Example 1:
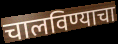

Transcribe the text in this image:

चालविण्याचा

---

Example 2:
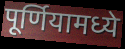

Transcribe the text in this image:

पूर्णियामध्ये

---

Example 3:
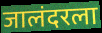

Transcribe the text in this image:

जालंदरला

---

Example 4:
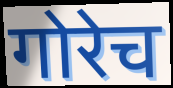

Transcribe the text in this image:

गोरेच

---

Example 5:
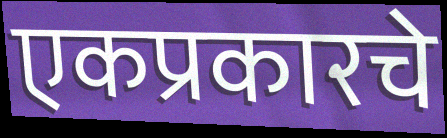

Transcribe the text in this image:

एकप्रकारचे